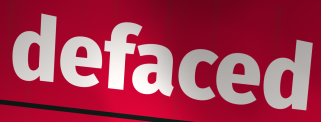
defaced